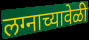
लग्नाच्यावेळी